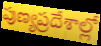
పుణ్యప్రదేశాల్లో